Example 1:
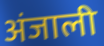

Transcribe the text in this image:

अंजाली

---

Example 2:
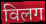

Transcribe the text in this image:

विलग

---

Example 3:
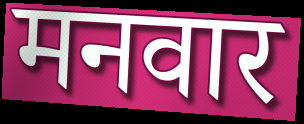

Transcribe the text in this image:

मनवार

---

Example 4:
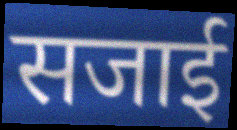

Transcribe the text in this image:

सजाई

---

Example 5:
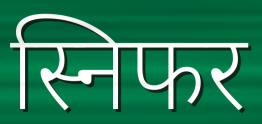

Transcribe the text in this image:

स्निफर